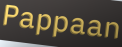
Pappaan